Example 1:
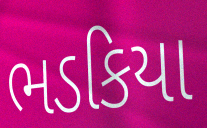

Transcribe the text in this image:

ભડકિયા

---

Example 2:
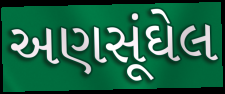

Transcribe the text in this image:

અણસૂંઘેલ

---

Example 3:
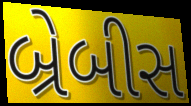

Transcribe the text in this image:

બ્રેબીસ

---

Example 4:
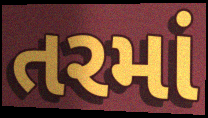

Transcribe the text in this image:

તરમાં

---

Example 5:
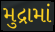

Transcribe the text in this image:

મુદ્રામાં